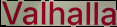
Valhalla